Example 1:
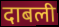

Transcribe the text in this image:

दाबली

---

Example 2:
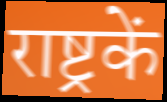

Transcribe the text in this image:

राष्ट्रकें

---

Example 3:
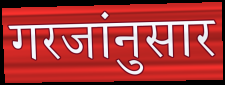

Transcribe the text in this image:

गरजांनुसार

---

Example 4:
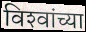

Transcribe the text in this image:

विश्वांच्या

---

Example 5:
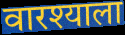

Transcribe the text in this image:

वारश्याला